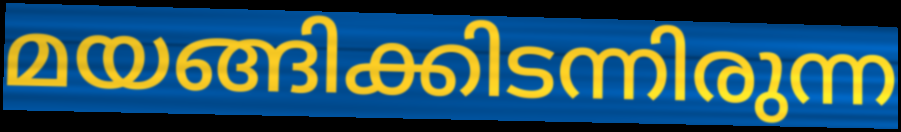
മയങ്ങിക്കിടന്നിരുന്ന